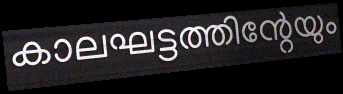
കാലഘട്ടത്തിന്റേയും